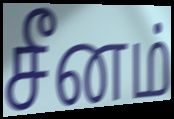
சீனம்